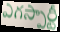
ఎగస్పార్టీ